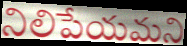
నిలిపేయమని